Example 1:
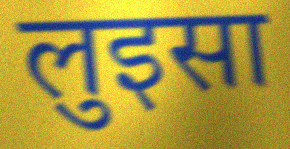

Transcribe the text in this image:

लुइसा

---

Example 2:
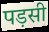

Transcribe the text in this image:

पड़सी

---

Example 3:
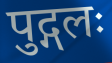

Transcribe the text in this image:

पुद्गलः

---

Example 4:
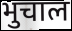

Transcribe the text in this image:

भुचाल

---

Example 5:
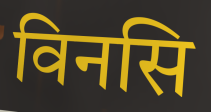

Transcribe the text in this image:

विनसि